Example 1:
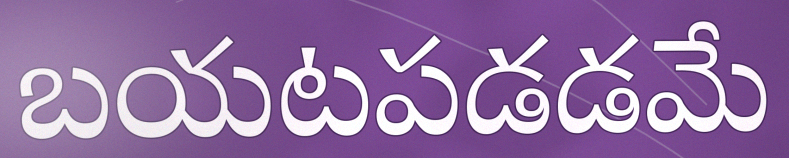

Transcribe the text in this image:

బయటపడడమే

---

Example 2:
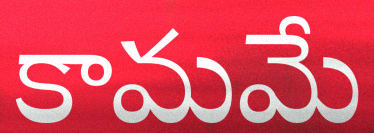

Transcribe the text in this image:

కామమే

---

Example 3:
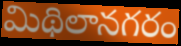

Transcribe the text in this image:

మిథిలానగరం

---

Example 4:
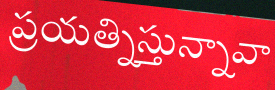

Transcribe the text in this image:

ప్రయత్నిస్తున్నావా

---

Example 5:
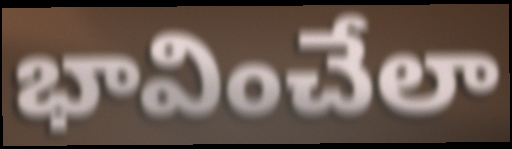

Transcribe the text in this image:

భావించేలా